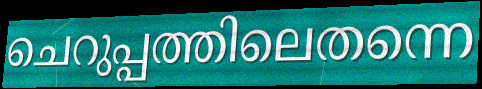
ചെറുപ്പത്തിലെതന്നെ